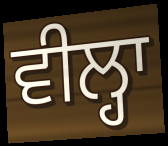
ਵੀਲ੍ਹਾ